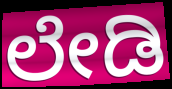
ಲೇಡಿ